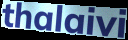
thalaivi